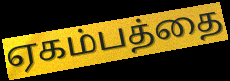
ஏகம்பத்தை